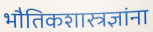
भौतिकशास्त्रज्ञांना